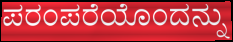
ಪರಂಪರೆಯೊಂದನ್ನು